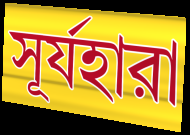
সূর্যহারা